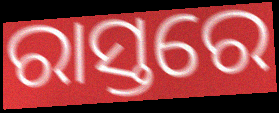
ରାସ୍ତରେ